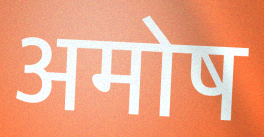
अमोष